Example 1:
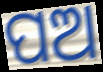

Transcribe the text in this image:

ପଅ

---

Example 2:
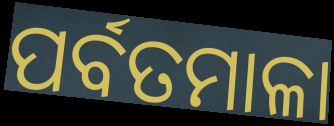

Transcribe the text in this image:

ପର୍ବତମାଳା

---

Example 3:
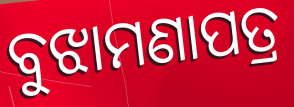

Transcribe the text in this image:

ବୁଝାମଣାପତ୍ର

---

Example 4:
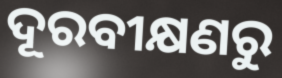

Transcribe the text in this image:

ଦୂରବୀକ୍ଷଣରୁ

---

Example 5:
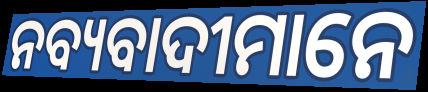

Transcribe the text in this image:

ନବ୍ୟବାଦୀମାନେ